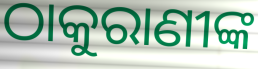
ଠାକୁରାଣୀଙ୍କ